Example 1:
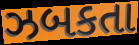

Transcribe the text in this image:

ઝબકતા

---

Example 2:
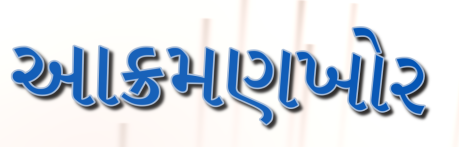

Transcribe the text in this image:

આક્રમણખોર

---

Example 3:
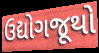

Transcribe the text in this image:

ઉદ્યોગજૂથો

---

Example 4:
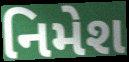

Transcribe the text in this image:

નિમેશ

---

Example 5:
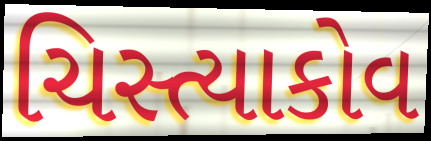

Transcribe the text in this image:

ચિસ્ત્યાકોવ